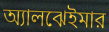
অ্যালঝেইমার